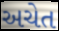
અચેત